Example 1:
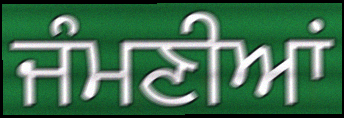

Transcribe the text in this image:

ਜੰਮਣੀਆਂ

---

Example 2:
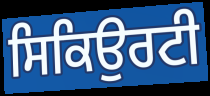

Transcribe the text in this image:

ਸਿਕਿਉਰਟੀ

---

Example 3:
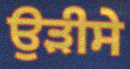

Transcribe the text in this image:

ਉੜੀਸੇ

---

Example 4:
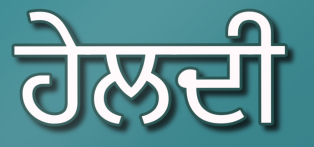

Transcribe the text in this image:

ਹੇਲਦੀ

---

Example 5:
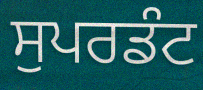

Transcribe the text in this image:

ਸੁਪਰਡੰਟ